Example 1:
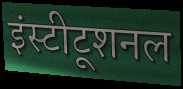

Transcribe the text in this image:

इंस्टीटूशनल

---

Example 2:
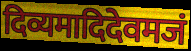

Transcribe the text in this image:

दिव्यमादिदेवमजं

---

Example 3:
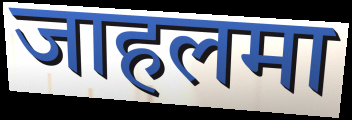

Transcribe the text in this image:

जाहलमा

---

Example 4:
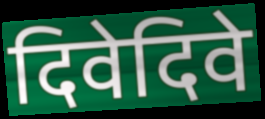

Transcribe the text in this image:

दिवेदिवे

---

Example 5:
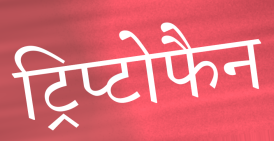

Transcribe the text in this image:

ट्रिप्टोफैन